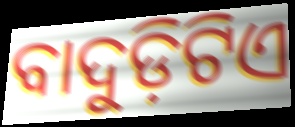
ବାଦୁଡ଼ିଟିଏ